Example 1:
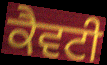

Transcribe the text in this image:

ਕੈਵਟੀ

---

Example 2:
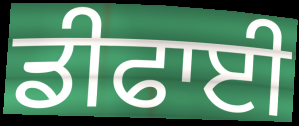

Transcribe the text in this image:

ਡੀਫਾਈ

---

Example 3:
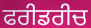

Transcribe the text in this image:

ਫਰੀਡਰੀਚ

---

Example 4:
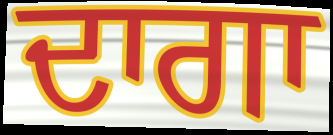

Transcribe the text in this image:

ਦਾਗਾ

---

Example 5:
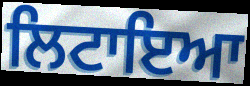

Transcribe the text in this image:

ਲਿਟਾਇਆ